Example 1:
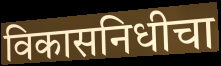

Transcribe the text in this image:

विकासनिधीचा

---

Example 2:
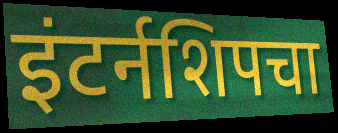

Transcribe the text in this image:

इंटर्नशिपचा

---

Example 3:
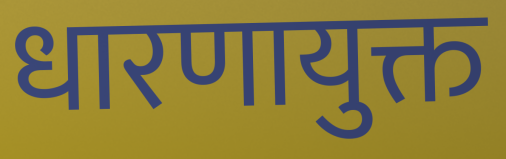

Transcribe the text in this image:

धारणायुक्त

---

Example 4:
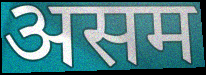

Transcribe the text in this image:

असम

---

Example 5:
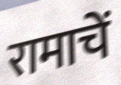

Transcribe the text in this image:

रामाचें